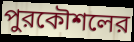
পুরকৌশলের